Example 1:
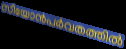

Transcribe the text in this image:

സീയോൻപർവതത്തിൽ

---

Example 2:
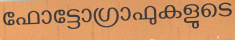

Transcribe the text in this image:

ഫോട്ടോഗ്രാഫുകളുടെ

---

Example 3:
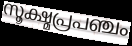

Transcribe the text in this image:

സൂക്ഷ്മപ്രപഞ്ചം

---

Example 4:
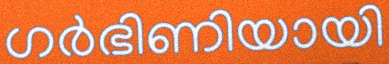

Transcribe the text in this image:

ഗർഭിണിയായി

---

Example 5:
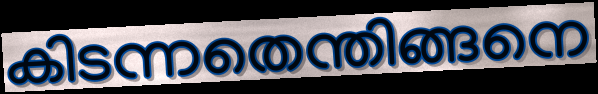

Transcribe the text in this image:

കിടന്നതെന്തിങ്ങനെ